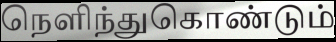
நெளிந்துகொண்டும்